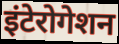
इंटेरोगेशन